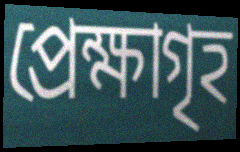
প্ৰেক্ষাগৃহ